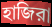
হাজিরা